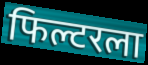
फिल्टरला